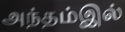
அந்தம்இல்